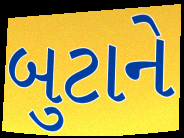
બુટાને